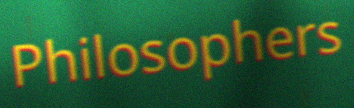
Philosophers